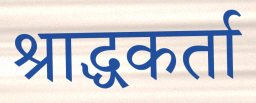
श्राद्धकर्ता